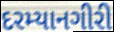
દરમ્યાનગીરી